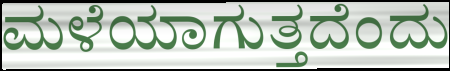
ಮಳೆಯಾಗುತ್ತದೆಂದು